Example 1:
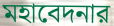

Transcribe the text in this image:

মহাবেদনার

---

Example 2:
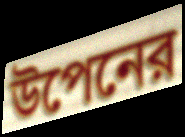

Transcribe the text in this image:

উপেনের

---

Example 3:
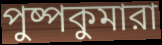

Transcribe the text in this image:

পুষ্পকুমারা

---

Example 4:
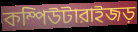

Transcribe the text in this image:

কম্পিউটারাইজড়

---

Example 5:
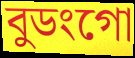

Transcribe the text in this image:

বুডংগো